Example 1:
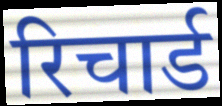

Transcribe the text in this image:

रिचार्ड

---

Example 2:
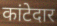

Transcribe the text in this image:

कांटेदार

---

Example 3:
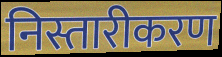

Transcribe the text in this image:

निस्तारीकरण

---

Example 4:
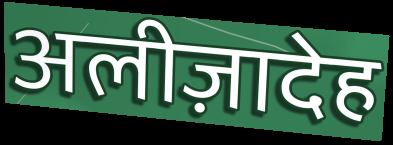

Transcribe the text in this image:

अलीज़ादेह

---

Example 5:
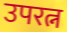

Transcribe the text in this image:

उपरत्न